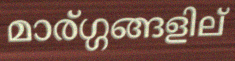
മാര്ഗ്ഗങ്ങളില്